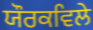
ਯੌਰਕਵਿਲੇ